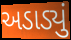
અડાડ્યું